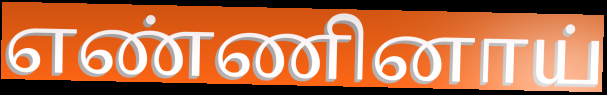
எண்ணினாய்